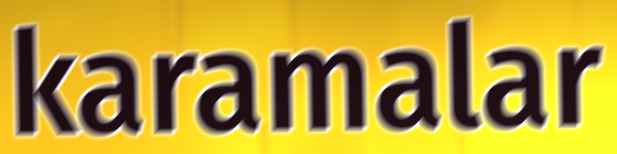
karamalar